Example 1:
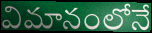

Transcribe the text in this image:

విమానంలోనే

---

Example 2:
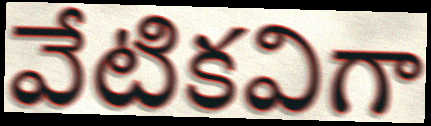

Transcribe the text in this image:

వేటికవిగా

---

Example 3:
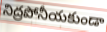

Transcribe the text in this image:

నిద్రపోనీయకుండా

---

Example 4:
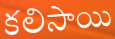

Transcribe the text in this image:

కలిసాయి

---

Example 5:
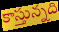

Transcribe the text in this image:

కాస్తున్నది